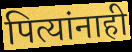
पित्यांनाही